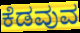
ಕೆಡವುವ